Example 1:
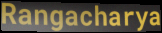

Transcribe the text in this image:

Rangacharya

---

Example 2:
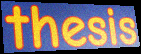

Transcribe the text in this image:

thesis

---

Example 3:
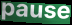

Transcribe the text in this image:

pause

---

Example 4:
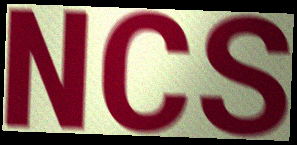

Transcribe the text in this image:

NCS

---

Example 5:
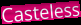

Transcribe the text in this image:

Casteless